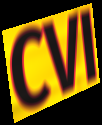
CVI